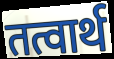
तत्वार्थ